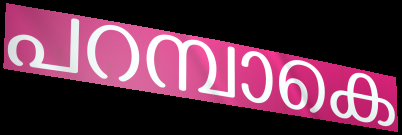
പറമ്പാകെ